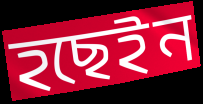
হছেইন